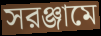
সরঞ্জামে